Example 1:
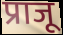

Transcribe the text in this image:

प्राजू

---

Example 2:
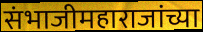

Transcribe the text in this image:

संभाजीमहाराजांच्या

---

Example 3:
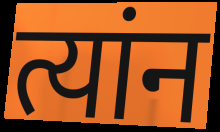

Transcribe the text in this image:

त्यांन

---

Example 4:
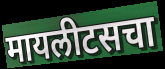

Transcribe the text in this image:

मायलीटसचा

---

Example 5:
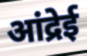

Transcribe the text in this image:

आंद्रेई